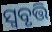
ସ୍ୱବୃତ୍ତି